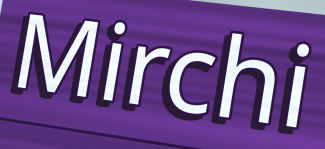
Mirchi